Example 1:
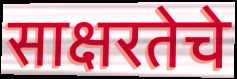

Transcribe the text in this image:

साक्षरतेचे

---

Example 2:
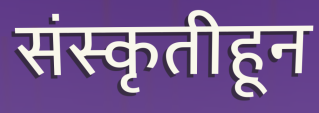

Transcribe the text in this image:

संस्कृतीहून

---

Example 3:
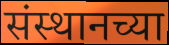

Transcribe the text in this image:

संस्थानच्या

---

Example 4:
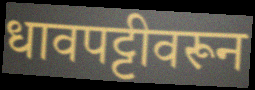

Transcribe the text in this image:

धावपट्टीवरून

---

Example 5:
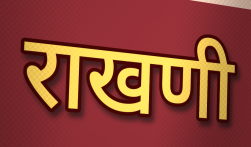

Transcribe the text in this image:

राखणी